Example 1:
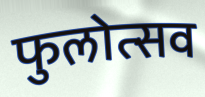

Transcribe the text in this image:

फुलोत्सव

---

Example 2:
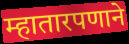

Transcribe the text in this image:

म्हातारपणाने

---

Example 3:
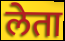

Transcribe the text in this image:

लेता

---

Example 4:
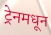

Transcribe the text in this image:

ट्रेनमधून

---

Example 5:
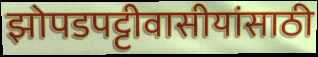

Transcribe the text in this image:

झोपडपट्टीवासीयांसाठी